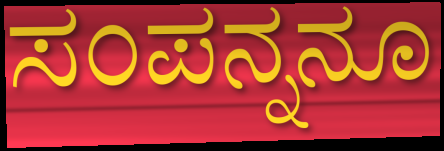
ಸಂಪನ್ನನೂ